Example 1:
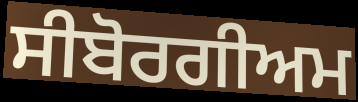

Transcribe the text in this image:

ਸੀਬੋਰਗੀਅਮ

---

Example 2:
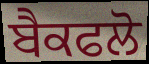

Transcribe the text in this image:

ਬੈਕਫਲੋ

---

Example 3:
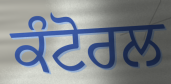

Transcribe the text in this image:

ਕੰਟੋਰਲ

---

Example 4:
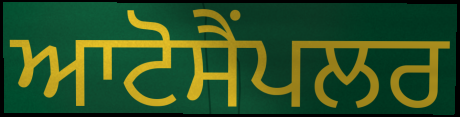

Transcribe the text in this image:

ਆਟੋਸੈਂਪਲਰ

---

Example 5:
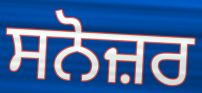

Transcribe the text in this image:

ਸਨੋਜ਼ਰ